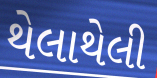
થેલાથેલી